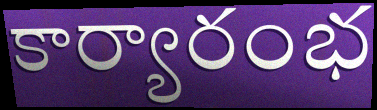
కార్యారంభ